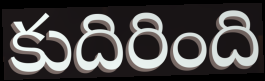
కుదిరింది